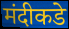
मंदीकडे